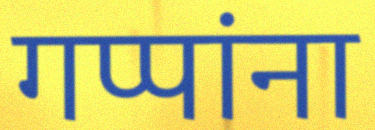
गप्पांना